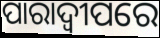
ପାରାଦ୍ବୀପରେ